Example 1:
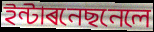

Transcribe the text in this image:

ইন্টাৰনেছনেলে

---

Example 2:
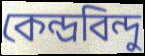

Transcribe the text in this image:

কেন্দ্ৰবিন্দু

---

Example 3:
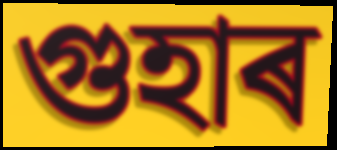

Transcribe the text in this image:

গুহাৰ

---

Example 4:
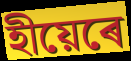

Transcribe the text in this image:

হীয়েৰে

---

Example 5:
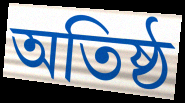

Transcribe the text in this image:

অতিষ্ঠ